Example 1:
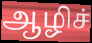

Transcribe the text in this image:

ஆழிச்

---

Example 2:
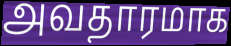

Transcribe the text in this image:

அவதாரமாக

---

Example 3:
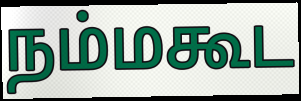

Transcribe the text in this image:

நம்மகூட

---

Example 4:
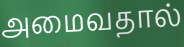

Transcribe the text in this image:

அமைவதால்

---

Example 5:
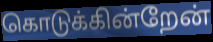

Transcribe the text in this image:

கொடுக்கின்றேன்